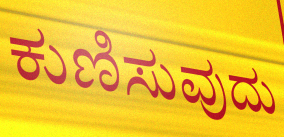
ಕುಣಿಸುವುದು